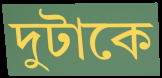
দুটাকে